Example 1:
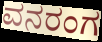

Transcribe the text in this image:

ವನರಂಗ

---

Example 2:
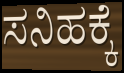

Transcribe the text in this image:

ಸನಿಹಕ್ಕೆ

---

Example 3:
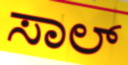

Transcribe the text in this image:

ಸಾಲ್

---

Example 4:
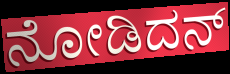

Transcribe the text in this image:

ನೋಡಿದನ್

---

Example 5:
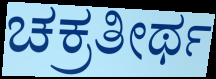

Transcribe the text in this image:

ಚಕ್ರತೀರ್ಥ